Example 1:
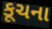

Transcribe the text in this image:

કૂચના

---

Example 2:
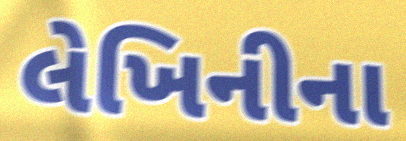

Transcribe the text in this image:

લેખિનીના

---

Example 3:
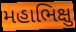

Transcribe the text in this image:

મહાભિક્ષુ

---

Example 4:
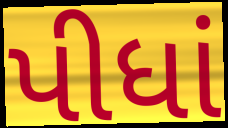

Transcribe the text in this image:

પીધાં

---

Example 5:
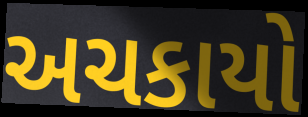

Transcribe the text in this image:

અચકાયો